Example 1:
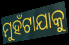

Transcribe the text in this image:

ମୁହଁଟାଯାକୁ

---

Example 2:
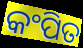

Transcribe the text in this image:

କଂପିତ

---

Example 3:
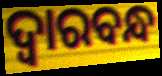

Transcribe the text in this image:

ଦ୍ବାରବନ୍ଧ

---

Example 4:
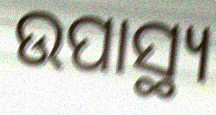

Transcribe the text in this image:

ଉପାସ୍ଥ୍ୟ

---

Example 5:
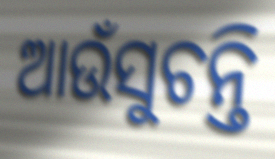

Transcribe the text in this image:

ଆଉଁସୁଚନ୍ତି